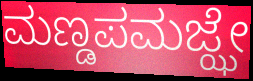
ಮಣ್ಡಪಮಜ್ಝೇ